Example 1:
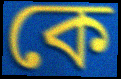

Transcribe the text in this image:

কে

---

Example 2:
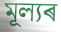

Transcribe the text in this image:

মূল্যৰ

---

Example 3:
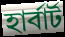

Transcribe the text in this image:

হাৰ্বাৰ্ট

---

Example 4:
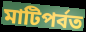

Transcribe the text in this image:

মাটিপৰ্বত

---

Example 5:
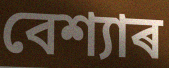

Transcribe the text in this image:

বেশ্যাৰ